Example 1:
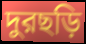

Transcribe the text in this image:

দুরছড়ি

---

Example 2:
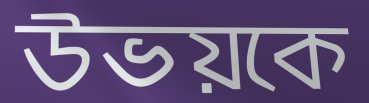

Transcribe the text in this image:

উভয়কে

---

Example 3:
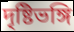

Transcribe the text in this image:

দৃষ্টিভঙ্গি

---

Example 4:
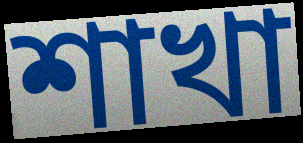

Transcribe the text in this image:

শাখা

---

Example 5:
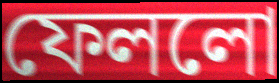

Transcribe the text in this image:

ফেললো